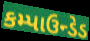
કમ્પાઉન્ડેડ